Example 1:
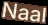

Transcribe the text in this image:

Naal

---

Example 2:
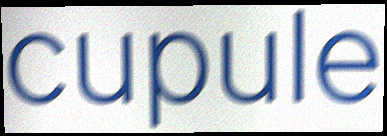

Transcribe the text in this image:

cupule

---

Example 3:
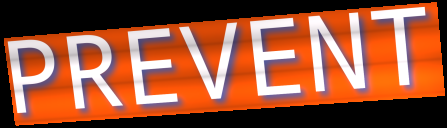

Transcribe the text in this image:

PREVENT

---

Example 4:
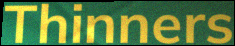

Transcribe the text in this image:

Thinners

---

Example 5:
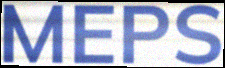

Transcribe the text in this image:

MEPS